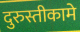
दुरुस्तीकामे